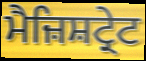
ਮੈਜ਼ਿਸ਼ਟ੍ਰੇਟ